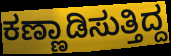
ಕಣ್ಣಾಡಿಸುತ್ತಿದ್ದ